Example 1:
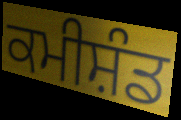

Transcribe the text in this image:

ਕਮੀਸ਼ੰਡ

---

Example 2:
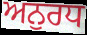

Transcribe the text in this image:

ਅਨੁਰਧ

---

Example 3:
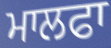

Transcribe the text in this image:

ਮਾਲਫਾ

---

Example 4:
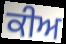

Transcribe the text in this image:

ਕੀਅ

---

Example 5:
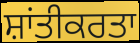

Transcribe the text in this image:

ਸ਼ਾਂਤੀਕਰਤਾ